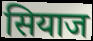
सियाज